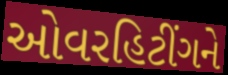
ઓવરહિટીંગને